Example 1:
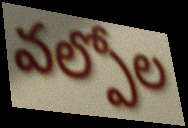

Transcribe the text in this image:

వల్పోల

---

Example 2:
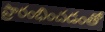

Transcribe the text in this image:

ప్రారంభించడంతో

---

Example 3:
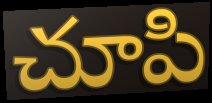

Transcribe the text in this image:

చూపి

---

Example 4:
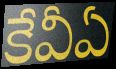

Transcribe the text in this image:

కేవీఏ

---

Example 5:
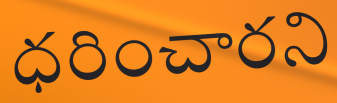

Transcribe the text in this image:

ధరించారని